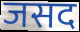
जसद